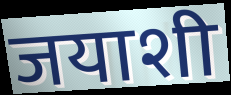
जयाशी